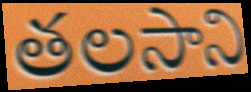
తలసాని